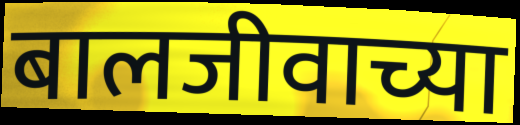
बालजीवाच्या